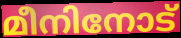
മീനിനോട്